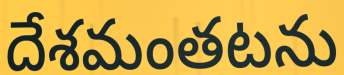
దేశమంతటను